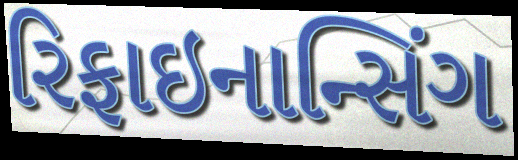
રિફાઇનાન્સિંગ